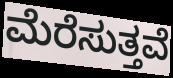
ಮೆರೆಸುತ್ತವೆ